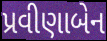
પ્રવીણાબેન